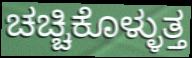
ಚಚ್ಚಿಕೊಳ್ಳುತ್ತ